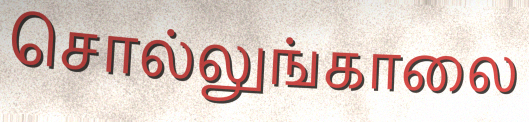
சொல்லுங்காலை